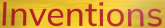
Inventions